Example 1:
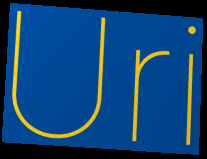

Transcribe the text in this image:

Uri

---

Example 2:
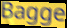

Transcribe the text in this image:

Bagge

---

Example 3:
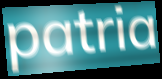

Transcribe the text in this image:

patria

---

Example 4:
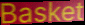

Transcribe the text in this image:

Basket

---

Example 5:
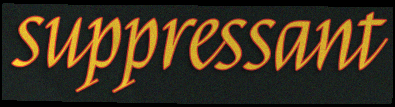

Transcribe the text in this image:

suppressant